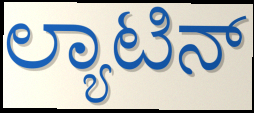
ಲ್ಯಾಟಿನ್